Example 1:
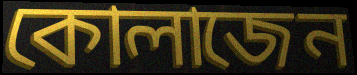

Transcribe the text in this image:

কোলাজেন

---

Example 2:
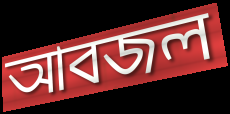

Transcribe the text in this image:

আবজল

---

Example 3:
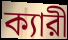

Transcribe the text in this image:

ক্যারী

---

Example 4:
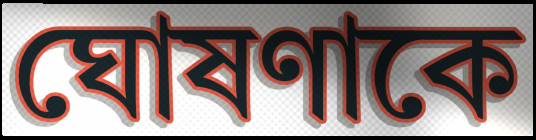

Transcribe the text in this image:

ঘোষণাকে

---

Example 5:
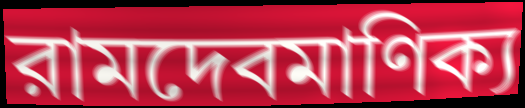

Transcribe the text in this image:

রামদেবমাণিক্য